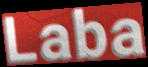
Laba